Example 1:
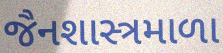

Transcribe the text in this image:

જૈનશાસ્ત્રમાળા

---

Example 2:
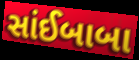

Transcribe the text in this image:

સાંઈબાબા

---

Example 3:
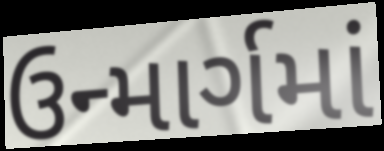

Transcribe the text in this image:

ઉન્માર્ગમાં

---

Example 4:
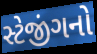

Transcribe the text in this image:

સ્ટેજીંગનો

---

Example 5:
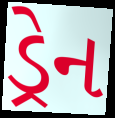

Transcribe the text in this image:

ડ્રેન